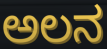
ಅಲನ